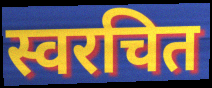
स्वरचित